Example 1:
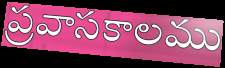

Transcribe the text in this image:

ప్రవాసకాలము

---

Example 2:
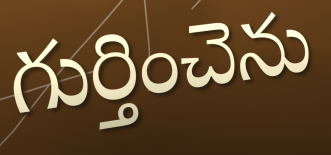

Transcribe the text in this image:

గుర్తించెను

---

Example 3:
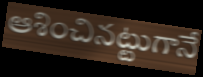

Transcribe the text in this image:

ఆశించినట్టుగానే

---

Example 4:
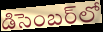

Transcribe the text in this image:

డిసెంబర్‌లో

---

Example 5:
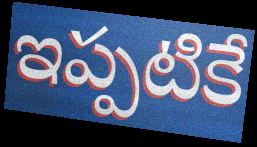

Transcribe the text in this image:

ఇప్పటికే